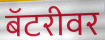
बॅटरीवर